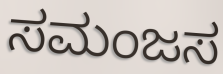
ಸಮಂಜಸ